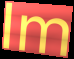
Im